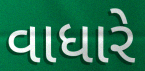
વાધારે